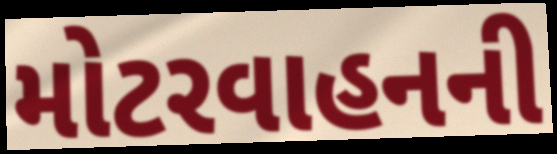
મોટરવાહનની